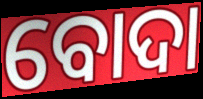
ବୋଦା